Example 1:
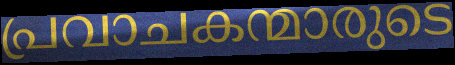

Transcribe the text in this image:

പ്രവാചകന്മാരുടെ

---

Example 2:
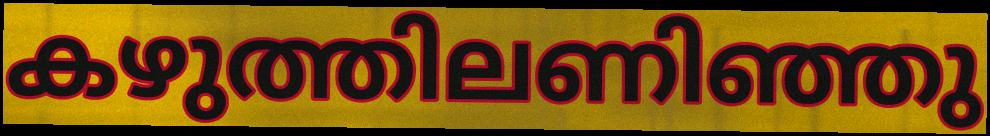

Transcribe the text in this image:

കഴുത്തിലണിഞ്ഞു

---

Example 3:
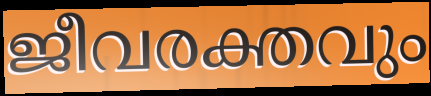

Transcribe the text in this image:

ജീവരക്തവും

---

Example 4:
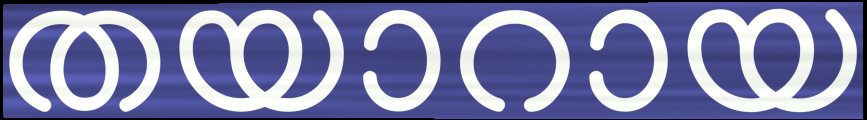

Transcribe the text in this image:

തയാറായ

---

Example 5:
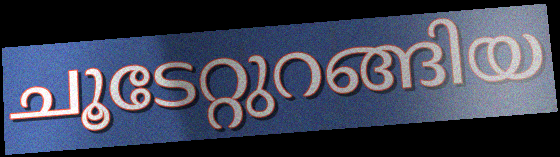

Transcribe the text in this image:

ചൂടേറ്റുറങ്ങിയ